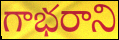
గాభరాని